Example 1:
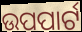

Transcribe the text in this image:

ଉପପାର୍ଟ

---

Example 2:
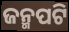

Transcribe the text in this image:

ଜନ୍ମପଟି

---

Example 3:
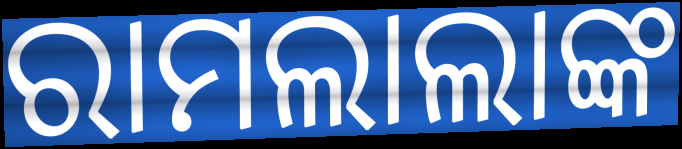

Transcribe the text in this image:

ରାମଲାଲାଙ୍କ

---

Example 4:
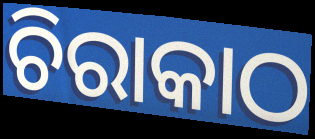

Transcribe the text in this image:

ଚିରାକାଠ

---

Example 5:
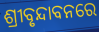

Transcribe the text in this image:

ଶ୍ରୀବୃନ୍ଦାବନରେ